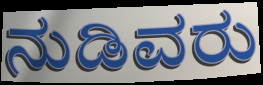
ನುಡಿವರು